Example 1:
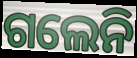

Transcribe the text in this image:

ଗଲେନି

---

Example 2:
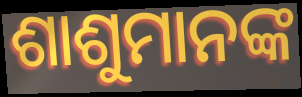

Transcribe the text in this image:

ଶାଶୁମାନଙ୍କ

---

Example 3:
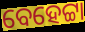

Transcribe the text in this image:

ବେହେଟ୍ଟା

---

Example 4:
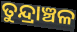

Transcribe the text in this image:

ତୁନ୍ଦ୍ରାଞ୍ଚଳ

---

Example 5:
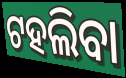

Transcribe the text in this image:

ଟହଲିବା